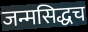
जन्मसिद्धच